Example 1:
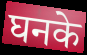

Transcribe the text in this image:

घनके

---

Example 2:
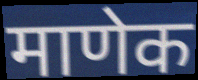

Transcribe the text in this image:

माणेक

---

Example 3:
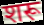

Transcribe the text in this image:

शरू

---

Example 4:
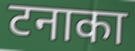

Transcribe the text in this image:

टनाका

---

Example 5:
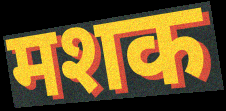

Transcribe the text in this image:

मशक